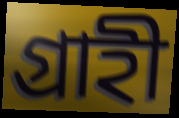
গ্রাহী